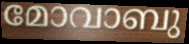
മോവാബു